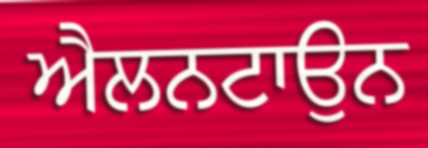
ਐਲਨਟਾਉਨ